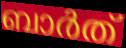
ബാർത്